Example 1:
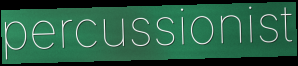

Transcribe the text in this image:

percussionist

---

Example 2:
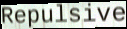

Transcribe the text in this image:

Repulsive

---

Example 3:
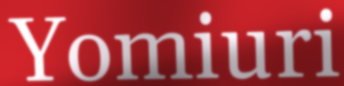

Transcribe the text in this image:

Yomiuri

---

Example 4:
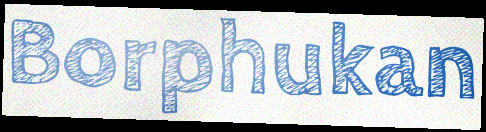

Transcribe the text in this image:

Borphukan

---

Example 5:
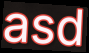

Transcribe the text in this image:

asd